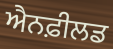
ਐਨਫ਼ੀਲਡ